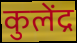
कुलेंद्र